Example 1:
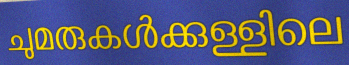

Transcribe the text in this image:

ചുമരുകൾക്കുള്ളിലെ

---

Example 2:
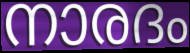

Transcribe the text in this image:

നാരദം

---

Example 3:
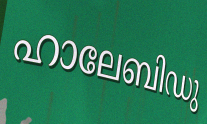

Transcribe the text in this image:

ഹാലേബിഡു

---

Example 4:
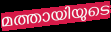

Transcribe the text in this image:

മത്തായിയുടെ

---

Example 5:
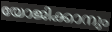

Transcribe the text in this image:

യോജിക്കാനും